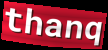
thanq